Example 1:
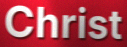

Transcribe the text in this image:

Christ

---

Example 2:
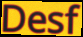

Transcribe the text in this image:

Desf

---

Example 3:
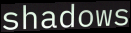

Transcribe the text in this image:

shadows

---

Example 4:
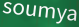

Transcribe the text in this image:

soumya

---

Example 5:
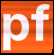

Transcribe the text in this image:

pf